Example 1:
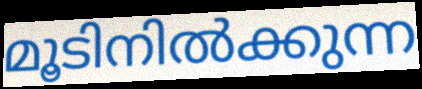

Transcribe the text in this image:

മൂടിനിൽക്കുന്ന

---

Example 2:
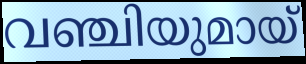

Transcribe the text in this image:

വഞ്ചിയുമായ്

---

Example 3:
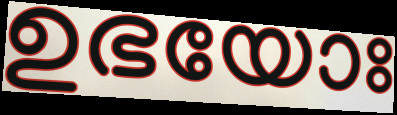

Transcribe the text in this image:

ഉഭയോഃ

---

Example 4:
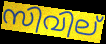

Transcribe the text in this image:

സിവില്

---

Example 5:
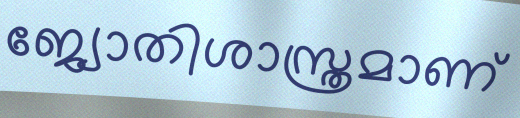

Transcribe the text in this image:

ജ്യോതിശാസ്ത്രമാണ്